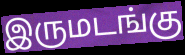
இருமடங்கு